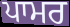
ਪਾਮਰ